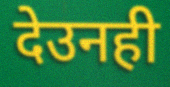
देउनही